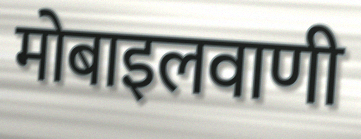
मोबाइलवाणी